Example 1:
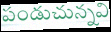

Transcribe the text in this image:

పండుచున్నవి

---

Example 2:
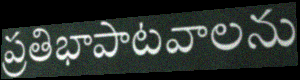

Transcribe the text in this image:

ప్రతిభాపాటవాలను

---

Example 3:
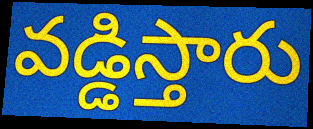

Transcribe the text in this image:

వడ్డిస్తారు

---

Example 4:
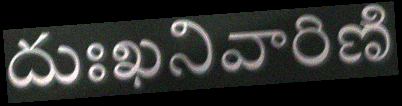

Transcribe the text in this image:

దుఃఖనివారిణి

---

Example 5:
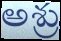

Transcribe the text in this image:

అశ్రు